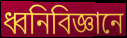
ধ্বনিবিজ্ঞানে